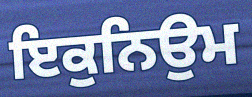
ਇਕੁਨਿਉਮ